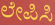
ಲೇಪಿಸಿ